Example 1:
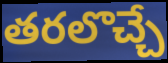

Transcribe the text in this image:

తరలొచ్చే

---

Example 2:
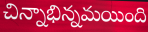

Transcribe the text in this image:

చిన్నాభిన్నమయింది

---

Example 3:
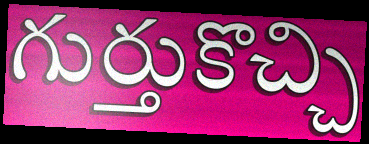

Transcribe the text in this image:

గుర్తుకొచ్చి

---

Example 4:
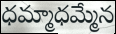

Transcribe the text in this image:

ధమ్మాధమ్మేన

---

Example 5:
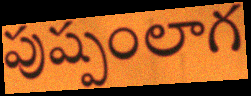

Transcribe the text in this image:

పుష్పంలాగ